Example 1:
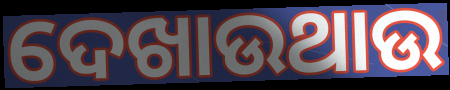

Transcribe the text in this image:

ଦେଖାଉଥାଉ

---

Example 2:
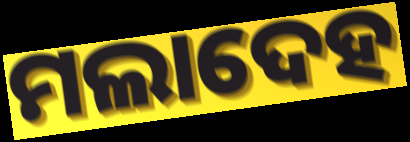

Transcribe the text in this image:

ମଲାଦେହ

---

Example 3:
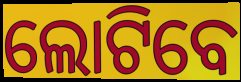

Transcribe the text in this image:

ଲୋଟିବେ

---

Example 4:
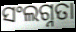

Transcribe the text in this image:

ସଂଲଗ୍ନତା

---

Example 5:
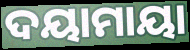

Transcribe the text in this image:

ଦୟାମାୟା